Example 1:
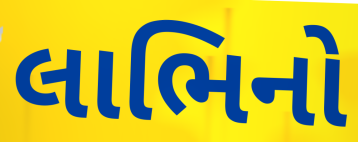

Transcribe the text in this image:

લાભિનો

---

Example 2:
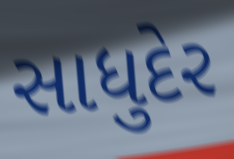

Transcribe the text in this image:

સાધુદેર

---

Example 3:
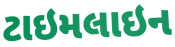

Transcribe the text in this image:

ટાઇમલાઇન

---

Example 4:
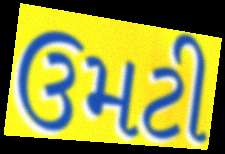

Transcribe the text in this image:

ઉમટી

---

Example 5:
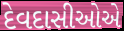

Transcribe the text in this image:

દેવદાસીઓએ